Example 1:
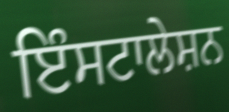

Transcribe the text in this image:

ਇੰਸਟਾਲੇਸ਼ਨ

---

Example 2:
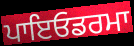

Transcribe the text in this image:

ਪਾਇਓਡਰਮਾ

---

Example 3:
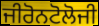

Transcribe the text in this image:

ਜੀਰੋਨਟੋਲੋਜੀ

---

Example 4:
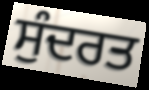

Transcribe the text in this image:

ਸੁੰਦਰਤ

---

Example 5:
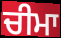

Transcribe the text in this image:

ਚੀਮਾ